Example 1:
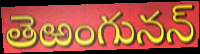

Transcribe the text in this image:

తెఱంగునన్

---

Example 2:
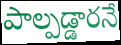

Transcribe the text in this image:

పాల్పడ్డారనే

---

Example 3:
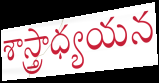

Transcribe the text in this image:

శాస్త్రాధ్యయన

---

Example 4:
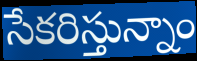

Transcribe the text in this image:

సేకరిస్తున్నాం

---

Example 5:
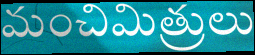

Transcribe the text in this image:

మంచిమిత్రులు